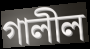
গালীল